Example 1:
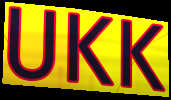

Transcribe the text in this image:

UKK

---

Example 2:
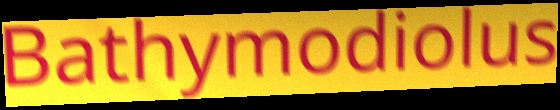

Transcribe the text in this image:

Bathymodiolus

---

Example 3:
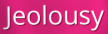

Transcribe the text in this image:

Jeolousy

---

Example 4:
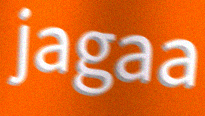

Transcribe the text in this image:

jagaa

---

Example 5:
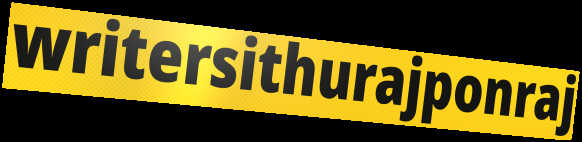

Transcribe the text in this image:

writersithurajponraj